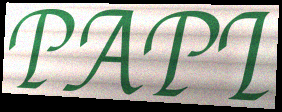
PAPI